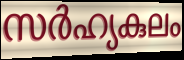
സർഹ്യകുലം